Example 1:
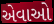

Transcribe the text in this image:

એવાઓ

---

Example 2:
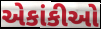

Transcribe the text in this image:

એકાંકીઓ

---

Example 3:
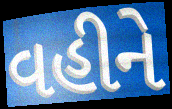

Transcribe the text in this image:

વહીને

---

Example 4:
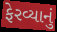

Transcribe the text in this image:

ફેરવ્યાનું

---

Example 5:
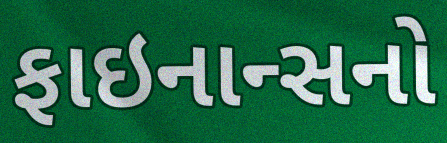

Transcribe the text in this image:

ફાઇનાન્સનો